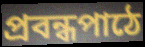
প্রবন্ধপাঠে